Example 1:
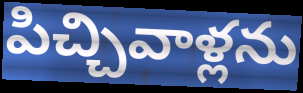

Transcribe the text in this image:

పిచ్చివాళ్లను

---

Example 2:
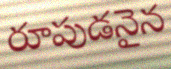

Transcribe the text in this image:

రూపుడనైన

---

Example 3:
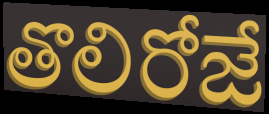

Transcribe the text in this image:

తొలిరోజే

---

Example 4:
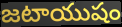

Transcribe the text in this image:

జటాయుషం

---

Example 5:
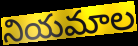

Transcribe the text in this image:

నియమాల